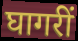
घागरीं